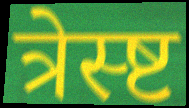
त्रेस्ष्ट